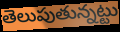
తెలుపుతున్నట్టు